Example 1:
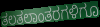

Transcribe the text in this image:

ತಲತಲಾಂತರಗಳಿಗೂ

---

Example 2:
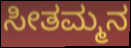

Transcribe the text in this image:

ಸೀತಮ್ಮನ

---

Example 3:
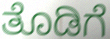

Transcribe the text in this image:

ತೊಡಿಗೆ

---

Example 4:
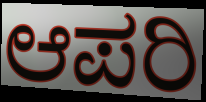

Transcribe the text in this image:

ಆಪರಿ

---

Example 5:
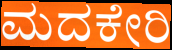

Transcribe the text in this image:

ಮದಕೇರಿ